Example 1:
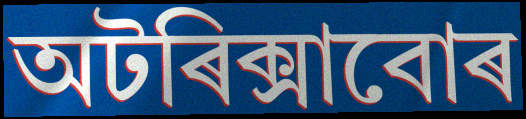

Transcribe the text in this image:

অটৰিক্সাবোৰ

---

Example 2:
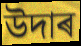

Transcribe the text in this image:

উদাৰ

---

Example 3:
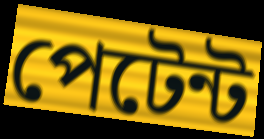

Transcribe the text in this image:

পেটেন্ট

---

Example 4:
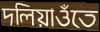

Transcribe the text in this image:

দলিয়াওঁতে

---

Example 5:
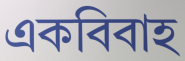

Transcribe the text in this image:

একবিবাহ